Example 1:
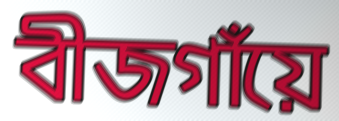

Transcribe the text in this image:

বীজগাঁয়ে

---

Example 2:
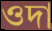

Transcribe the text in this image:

ওদা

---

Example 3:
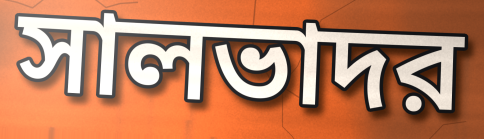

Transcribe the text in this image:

সালভাদর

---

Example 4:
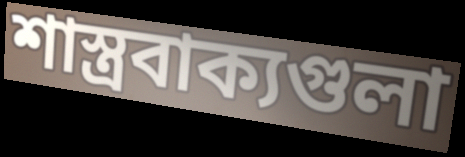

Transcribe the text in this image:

শাস্ত্রবাক্যগুলা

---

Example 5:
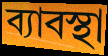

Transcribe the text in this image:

ব্যাবস্থা